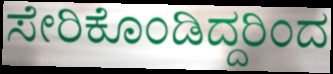
ಸೇರಿಕೊಂಡಿದ್ದರಿಂದ